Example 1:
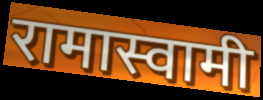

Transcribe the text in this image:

रामास्वामी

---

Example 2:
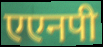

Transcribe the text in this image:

एएनपी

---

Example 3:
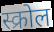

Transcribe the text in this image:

स्क्रोल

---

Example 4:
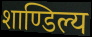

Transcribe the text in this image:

शाण्डिल्य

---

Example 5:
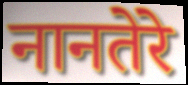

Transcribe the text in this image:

नानतेरे